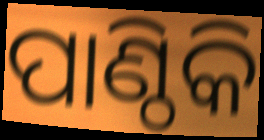
ପାଣ୍ଠିକି